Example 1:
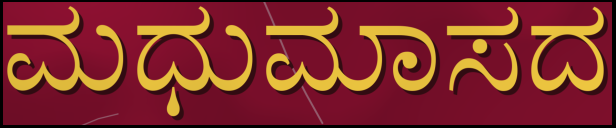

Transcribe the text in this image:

ಮಧುಮಾಸದ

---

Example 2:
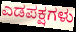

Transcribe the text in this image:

ಎಡಪಕ್ಷಗಳು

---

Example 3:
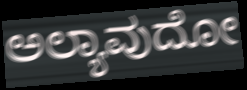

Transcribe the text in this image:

ಅಲ್ಯಾವುದೋ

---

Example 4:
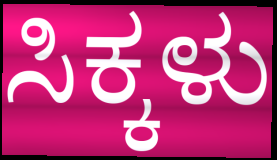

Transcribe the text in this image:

ಸಿಕ್ಕಳು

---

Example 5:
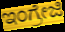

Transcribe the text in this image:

ಇಂಗ್ರೇಜಿ